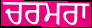
ਚਰਮਰਾ